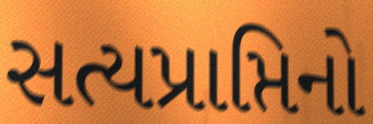
સત્યપ્રાપ્તિનો